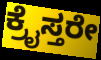
ಕ್ರೈಸ್ತರೇ